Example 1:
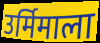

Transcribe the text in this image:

उर्मिमाला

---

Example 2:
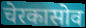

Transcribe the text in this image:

चेरकासोव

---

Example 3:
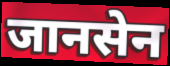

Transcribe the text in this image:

जानसेन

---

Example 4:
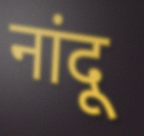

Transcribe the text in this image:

नांदू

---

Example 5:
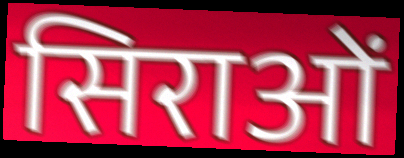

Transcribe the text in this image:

सिराओं